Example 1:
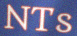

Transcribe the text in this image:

NTs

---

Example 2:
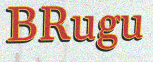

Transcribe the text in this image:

BRugu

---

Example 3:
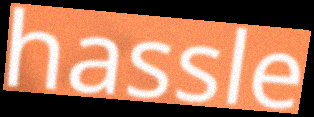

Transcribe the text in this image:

hassle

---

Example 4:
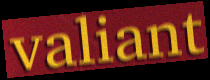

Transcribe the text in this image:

valiant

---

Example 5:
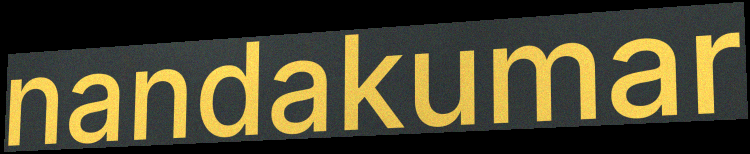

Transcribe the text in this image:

nandakumar